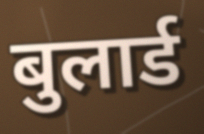
बुलार्ड